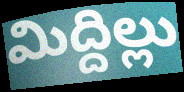
మిద్దిల్లు